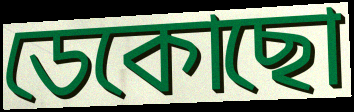
ডেকোছো